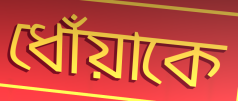
ধোঁয়াকে